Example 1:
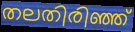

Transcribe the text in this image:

തലതിരിഞ്ഞ്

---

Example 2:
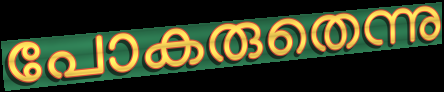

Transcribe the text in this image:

പോകരുതെന്നു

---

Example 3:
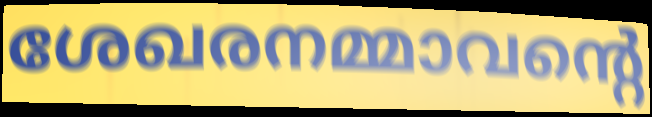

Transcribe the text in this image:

ശേഖരനമ്മാവന്റെ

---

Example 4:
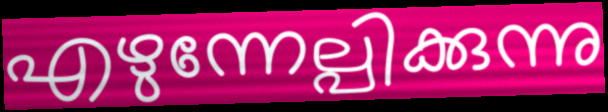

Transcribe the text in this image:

എഴുന്നേല്പിക്കുന്നു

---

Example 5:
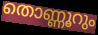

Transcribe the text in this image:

തൊണ്ണൂറും